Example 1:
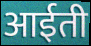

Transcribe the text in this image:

आईती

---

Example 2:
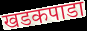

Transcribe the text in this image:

खडकपाडा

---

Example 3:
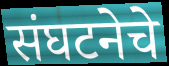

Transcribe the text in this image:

संघटनेचे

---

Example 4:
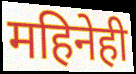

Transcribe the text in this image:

महिनेही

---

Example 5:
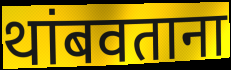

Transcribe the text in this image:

थांबवताना